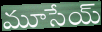
మూసేయ్